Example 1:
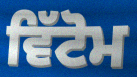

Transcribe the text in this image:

ਵਿੱਟੋਮ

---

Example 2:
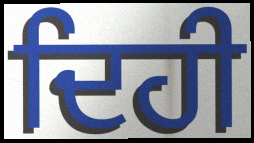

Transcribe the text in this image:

ਦਿਹੀ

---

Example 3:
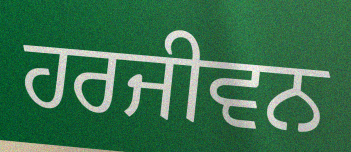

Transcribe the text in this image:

ਹਰਜੀਵਨ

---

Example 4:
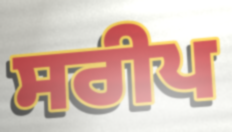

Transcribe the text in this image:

ਸਰੀਪ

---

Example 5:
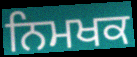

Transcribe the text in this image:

ਨਿਮਖਕ